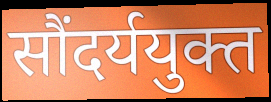
सौंदर्ययुक्त